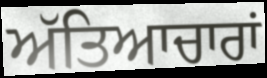
ਅੱਤਿਆਚਾਰਾਂ